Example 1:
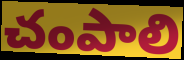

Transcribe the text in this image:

చంపాలి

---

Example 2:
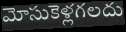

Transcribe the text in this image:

మోసుకెళ్లగలదు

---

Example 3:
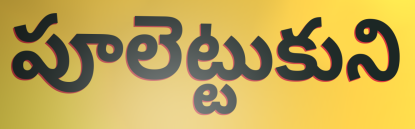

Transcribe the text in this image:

పూలెట్టుకుని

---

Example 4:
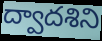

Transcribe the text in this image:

ద్వాదశిని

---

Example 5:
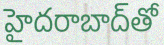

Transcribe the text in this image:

హైదరాబాద్‌తో